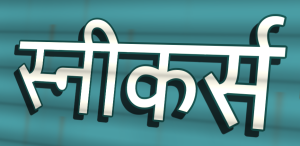
स्नीकर्स